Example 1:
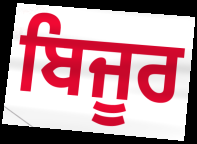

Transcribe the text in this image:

ਬਿਜੂਰ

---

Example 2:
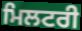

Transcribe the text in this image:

ਮਿਲਟਰੀ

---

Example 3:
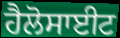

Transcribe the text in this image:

ਹੈਲੋਸਾਈਟ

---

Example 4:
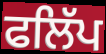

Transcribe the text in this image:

ਫਲਿੱਪ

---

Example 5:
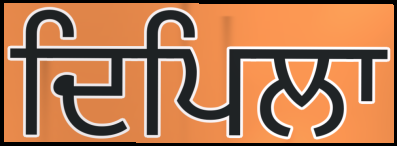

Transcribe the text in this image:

ਦਿਪਿਲਾ